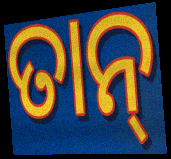
ତାନ୍